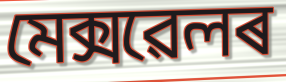
মেক্সৱেলৰ